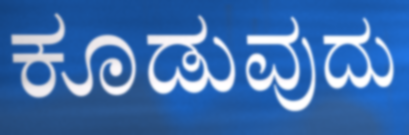
ಕೂಡುವುದು